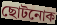
ছোটনোক